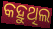
କହୁଥିଲ